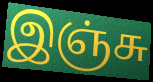
இஞ்சு